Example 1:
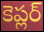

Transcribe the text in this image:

కెప్లర్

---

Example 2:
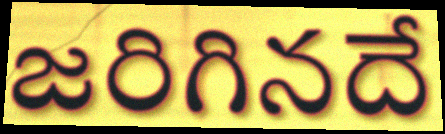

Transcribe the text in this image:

జరిగినదే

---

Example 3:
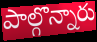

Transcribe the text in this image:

పాల్గొన్నారు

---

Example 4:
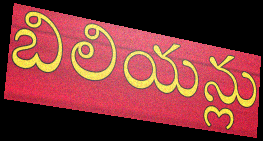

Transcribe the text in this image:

బిలియన్లు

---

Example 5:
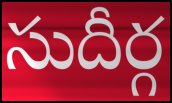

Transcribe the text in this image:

సుదీర్గ